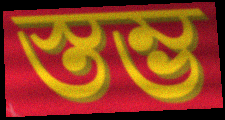
স্তম্ভ